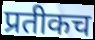
प्रतीकच